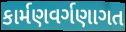
કાર્મણવર્ગણાગત